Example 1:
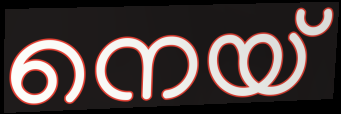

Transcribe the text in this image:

നെയ്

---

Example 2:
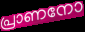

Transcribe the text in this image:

പ്രാണനോ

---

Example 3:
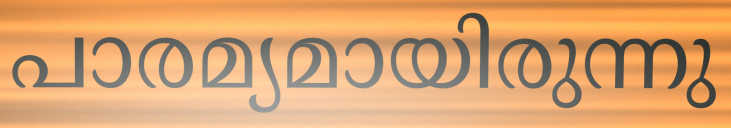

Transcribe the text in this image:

പാരമ്യമായിരുന്നു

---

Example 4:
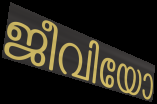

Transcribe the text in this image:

ജീവിയോ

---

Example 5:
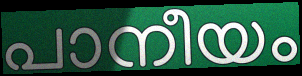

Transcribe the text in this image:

പാനീയം